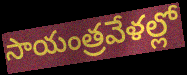
సాయంత్రవేళల్లో